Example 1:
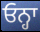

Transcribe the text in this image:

ਓਨ੍ਹਾ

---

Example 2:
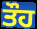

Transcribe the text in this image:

ਤੌਹ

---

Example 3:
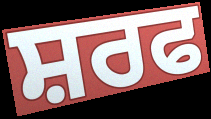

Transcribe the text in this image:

ਸ਼ਰਫ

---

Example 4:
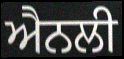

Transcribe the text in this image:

ਐਨਲੀ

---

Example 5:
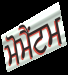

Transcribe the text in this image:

ਮੋਮੈਂਟਮ